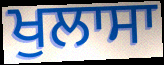
ਖੁਲਾਸਾ